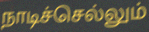
நாடிச்செல்லும்